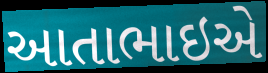
આતાભાઇએ